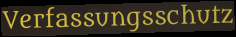
Verfassungsschutz